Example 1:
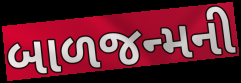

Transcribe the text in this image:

બાળજન્મની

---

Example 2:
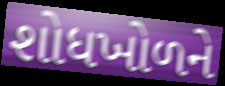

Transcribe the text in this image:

શોધખોળને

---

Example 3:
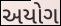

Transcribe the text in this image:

અયોગ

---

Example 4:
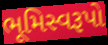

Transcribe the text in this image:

ભૂમિસ્વરૂપો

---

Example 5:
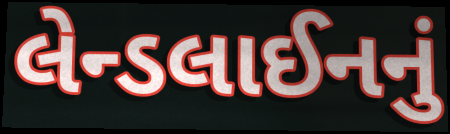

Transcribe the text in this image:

લેન્ડલાઈનનું